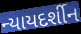
ન્યાયદર્શીન